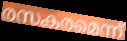
രസകരമെന്ന്